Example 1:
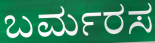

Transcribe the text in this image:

ಬರ್ಮರಸ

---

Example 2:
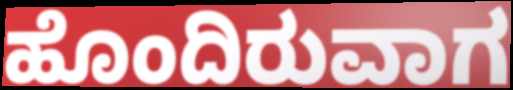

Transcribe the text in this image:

ಹೊಂದಿರುವಾಗ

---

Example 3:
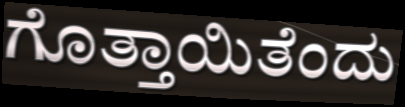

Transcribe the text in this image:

ಗೊತ್ತಾಯಿತೆಂದು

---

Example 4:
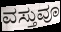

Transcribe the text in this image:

ವಸ್ತುವೂ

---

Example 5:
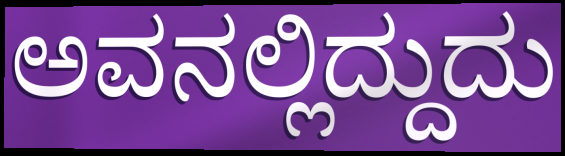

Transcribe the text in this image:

ಅವನಲ್ಲಿದ್ದುದು